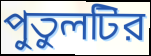
পুতুলটির